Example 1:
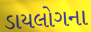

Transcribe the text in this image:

ડાયલોગના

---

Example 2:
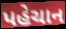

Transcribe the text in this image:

પહેચાન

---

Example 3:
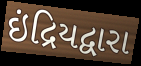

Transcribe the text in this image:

ઇંદ્રિયદ્વારા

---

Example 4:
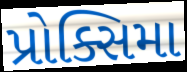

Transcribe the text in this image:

પ્રોક્સિમા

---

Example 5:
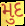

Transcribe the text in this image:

મુદ